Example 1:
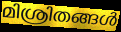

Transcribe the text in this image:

മിശ്രിതങ്ങൾ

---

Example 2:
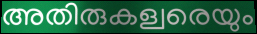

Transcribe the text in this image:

അതിരുകള്വരെയും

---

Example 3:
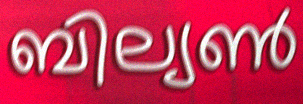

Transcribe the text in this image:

ബില്യൺ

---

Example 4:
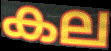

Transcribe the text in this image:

കല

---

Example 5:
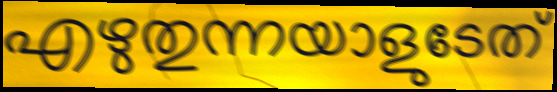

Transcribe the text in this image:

എഴുതുന്നയാളുടേത്